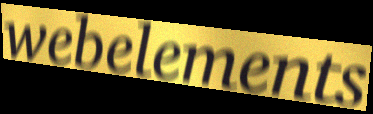
webelements